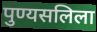
पुण्यसलिला